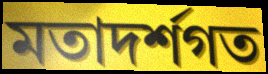
মতাদৰ্শগত